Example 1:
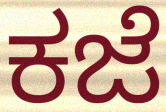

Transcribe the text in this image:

ಕಜೆ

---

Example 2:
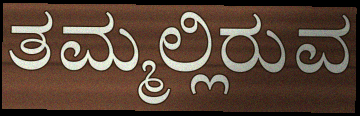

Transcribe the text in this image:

ತಮ್ಮಲ್ಲಿರುವ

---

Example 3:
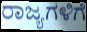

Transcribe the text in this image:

ರಾಜ್ಯಗಳಿಗೆ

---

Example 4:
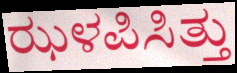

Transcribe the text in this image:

ಝಳಪಿಸಿತ್ತು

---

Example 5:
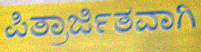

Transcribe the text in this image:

ಪಿತ್ರಾರ್ಜಿತವಾಗಿ